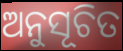
ଅନୁସୂଚିତ